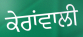
ਕੇਰਾਂਵਾਲੀ